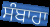
ਸੰਬਾਹਾ